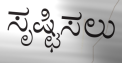
ಸೃಷ್ಟಿಸಲು